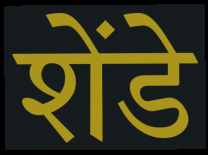
शेंडे